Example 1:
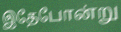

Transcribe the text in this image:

இதேபோன்று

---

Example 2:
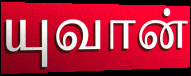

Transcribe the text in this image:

யுவான்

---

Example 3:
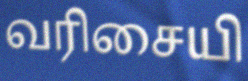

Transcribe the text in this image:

வரிசையி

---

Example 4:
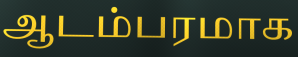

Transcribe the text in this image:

ஆடம்பரமாக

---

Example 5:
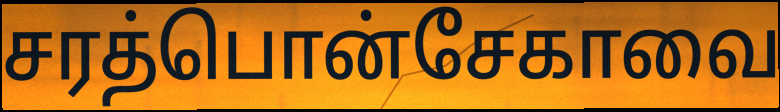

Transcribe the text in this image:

சரத்பொன்சேகாவை